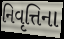
નિવૃત્તિના